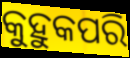
କୁହୁକପରି